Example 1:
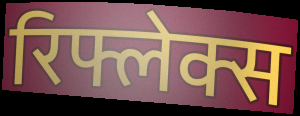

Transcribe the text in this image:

रिफ्लेक्स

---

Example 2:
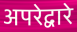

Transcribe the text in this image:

अपरेद्वारे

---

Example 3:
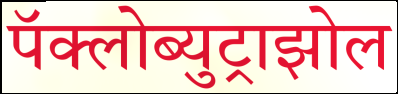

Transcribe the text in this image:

पॅक्लोब्युट्राझोल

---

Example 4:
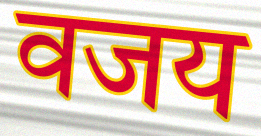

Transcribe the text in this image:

वजय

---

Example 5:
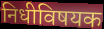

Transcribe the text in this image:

निधीविषयक